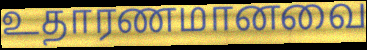
உதாரணமானவை